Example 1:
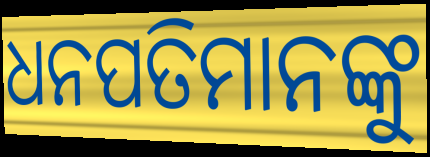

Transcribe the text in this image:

ଧନପତିମାନଙ୍କୁ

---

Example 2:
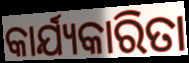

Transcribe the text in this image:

କାର୍ଯ୍ୟକାରିତା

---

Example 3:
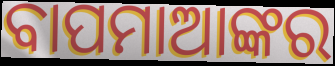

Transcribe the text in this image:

ବାପମାଆଙ୍କର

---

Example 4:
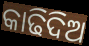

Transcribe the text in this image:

କାଢିଦିଅ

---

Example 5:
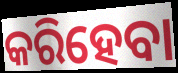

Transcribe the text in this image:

କରିହେବା